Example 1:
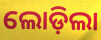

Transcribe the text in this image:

ଲୋଡ଼ିଲା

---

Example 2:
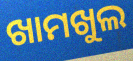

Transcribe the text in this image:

ଖାମଖୁଲ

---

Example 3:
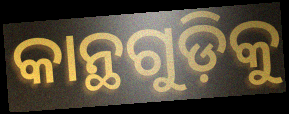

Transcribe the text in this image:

କାନ୍ଥଗୁଡ଼ିକୁ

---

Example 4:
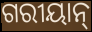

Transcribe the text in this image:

ଗରୀୟାନ୍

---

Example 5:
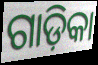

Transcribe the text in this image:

ଗାଡ଼ିକା